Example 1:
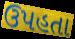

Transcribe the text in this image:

ઉપહતા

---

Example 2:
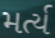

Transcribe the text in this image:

મર્ત્ય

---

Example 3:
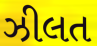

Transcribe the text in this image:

ઝીલત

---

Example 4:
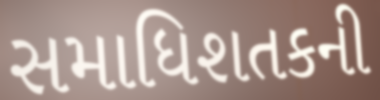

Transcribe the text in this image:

સમાધિશતકની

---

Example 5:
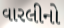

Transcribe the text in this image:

વારલીનો